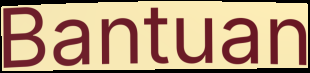
Bantuan